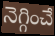
నెగ్గించే